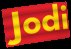
Jodi